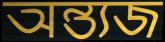
অন্ত্যজ